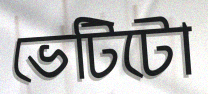
ভেটিটো